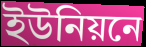
ইউনিয়নে